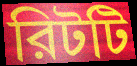
রিটটি